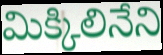
మిక్కిలినేని